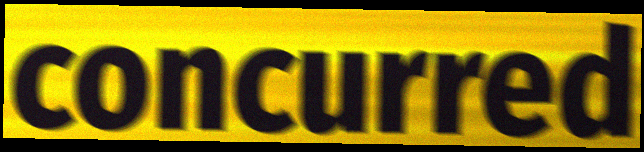
concurred